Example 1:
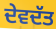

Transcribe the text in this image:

ਦੇਵਦੱਤ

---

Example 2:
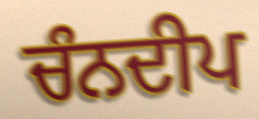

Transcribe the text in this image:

ਚੰਨਦੀਪ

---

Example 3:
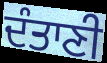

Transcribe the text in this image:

ਦੰਤਾਣੀ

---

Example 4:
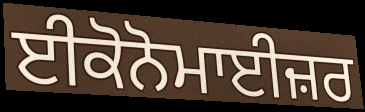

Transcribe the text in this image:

ਈਕੋਨੋਮਾਈਜ਼ਰ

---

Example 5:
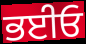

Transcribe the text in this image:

ਭਈਓ